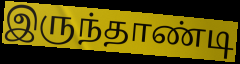
இருந்தாண்டி